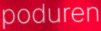
poduren